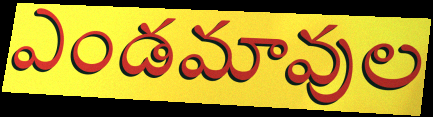
ఎండమావుల